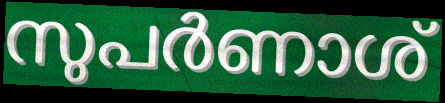
സുപർണാശ്